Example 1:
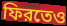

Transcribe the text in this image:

ফিরতেও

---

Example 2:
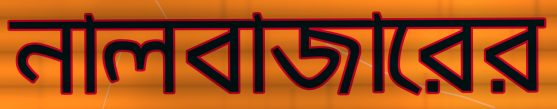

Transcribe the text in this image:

নালবাজারের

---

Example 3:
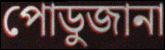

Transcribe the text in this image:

পোডুজানা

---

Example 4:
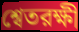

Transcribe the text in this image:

শ্বেতরক্ষী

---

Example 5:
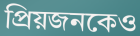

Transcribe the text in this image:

প্রিয়জনকেও